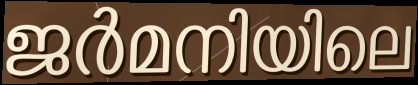
ജർമനിയിലെ